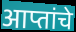
आप्तांचे